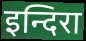
इन्दिरा